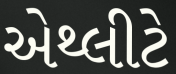
એથ્લીટે